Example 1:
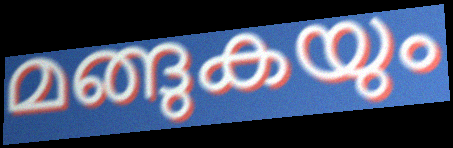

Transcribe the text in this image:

മങ്ങുകയും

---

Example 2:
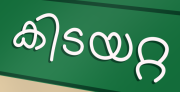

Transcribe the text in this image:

കിടയറ്റ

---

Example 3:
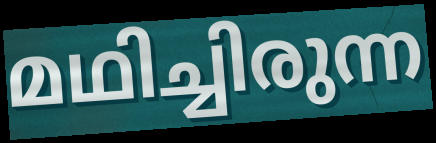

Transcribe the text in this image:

മഥിച്ചിരുന്ന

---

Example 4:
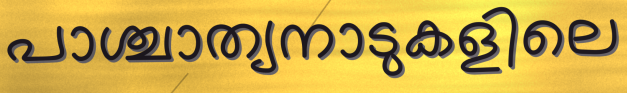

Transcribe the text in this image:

പാശ്ചാത്യനാടുകളിലെ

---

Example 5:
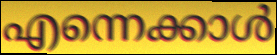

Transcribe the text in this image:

എന്നെക്കാൾ